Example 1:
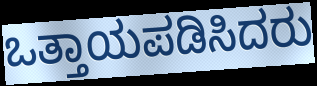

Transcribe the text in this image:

ಒತ್ತಾಯಪಡಿಸಿದರು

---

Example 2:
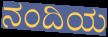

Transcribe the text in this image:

ನಂದಿಯ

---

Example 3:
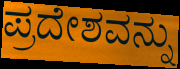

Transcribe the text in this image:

ಪ್ರದೇಶವನ್ನು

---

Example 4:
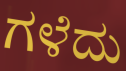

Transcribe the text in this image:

ಗಳೆದು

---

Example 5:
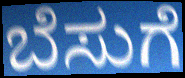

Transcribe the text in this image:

ಬೆಸುಗೆ